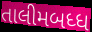
તાલીમબધ્ધ